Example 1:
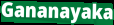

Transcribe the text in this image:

Gananayaka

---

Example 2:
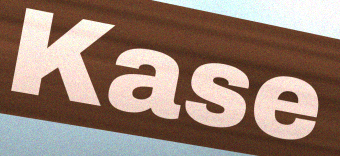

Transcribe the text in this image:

Kase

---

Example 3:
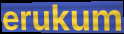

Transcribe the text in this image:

erukum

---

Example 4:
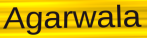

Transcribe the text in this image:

Agarwala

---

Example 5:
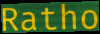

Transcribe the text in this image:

Ratho